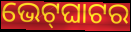
ଭେଟ୍‌ଘାଟର